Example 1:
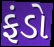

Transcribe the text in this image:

ફંડો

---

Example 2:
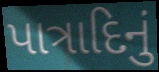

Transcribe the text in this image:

પાત્રાદિનું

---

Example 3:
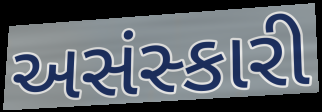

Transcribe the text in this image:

અસંસ્કારી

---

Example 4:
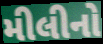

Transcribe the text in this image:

મીલીનો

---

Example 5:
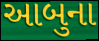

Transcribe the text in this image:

આબુના